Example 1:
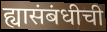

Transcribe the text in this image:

ह्यासंबंधीची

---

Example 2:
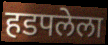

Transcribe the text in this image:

हडपलेला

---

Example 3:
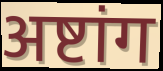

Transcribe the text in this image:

अष्टांग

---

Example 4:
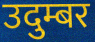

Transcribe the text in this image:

उदुम्बर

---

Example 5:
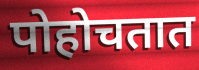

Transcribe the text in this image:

पोहोचतात